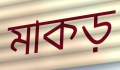
মাকড়